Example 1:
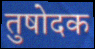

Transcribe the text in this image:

तुषोदक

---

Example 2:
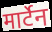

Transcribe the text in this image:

मार्टेन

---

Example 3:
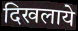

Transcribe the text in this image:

दिखलाये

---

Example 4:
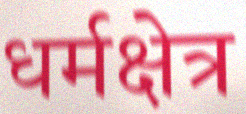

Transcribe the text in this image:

धर्मक्षेत्र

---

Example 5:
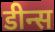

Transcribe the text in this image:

डीन्स